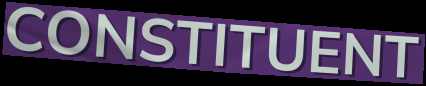
CONSTITUENT